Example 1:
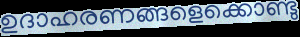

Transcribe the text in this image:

ഉദാഹരണങ്ങളെക്കൊണ്ടു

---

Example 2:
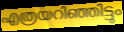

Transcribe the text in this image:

എത്രയറിഞ്ഞിട്ടും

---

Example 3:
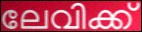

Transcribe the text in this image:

ലേവിക്ക്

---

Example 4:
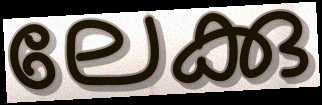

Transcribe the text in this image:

ലേക്കു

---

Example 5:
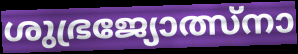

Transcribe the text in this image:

ശുഭ്രജ്യോത്സ്നാ